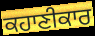
ਕਹਾਣੀਕਾਰ